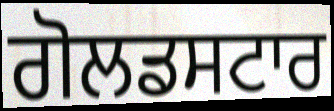
ਗੋਲਡਸਟਾਰ